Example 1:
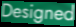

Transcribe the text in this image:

Designed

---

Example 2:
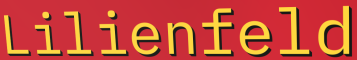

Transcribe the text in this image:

Lilienfeld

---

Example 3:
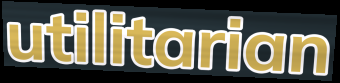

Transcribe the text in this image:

utilitarian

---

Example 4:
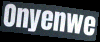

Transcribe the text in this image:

Onyenwe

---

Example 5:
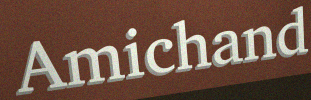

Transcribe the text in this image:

Amichand